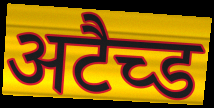
अटैच्ड